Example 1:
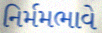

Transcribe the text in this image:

નિર્મમભાવે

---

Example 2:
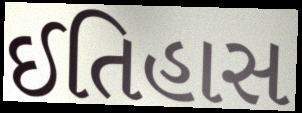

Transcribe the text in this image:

ઈતિહાસ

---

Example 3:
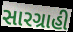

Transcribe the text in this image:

સારગ્રાહી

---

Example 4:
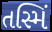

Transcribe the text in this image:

તસ્મિં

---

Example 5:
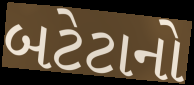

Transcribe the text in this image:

બટેટાનો